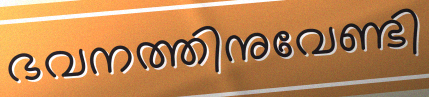
ഭവനത്തിനുവേണ്ടി